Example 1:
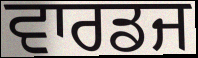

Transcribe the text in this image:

ਵਾਰਡਜ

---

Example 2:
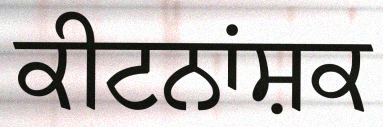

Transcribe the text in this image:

ਕੀਟਨਾਂਸ਼ਕ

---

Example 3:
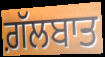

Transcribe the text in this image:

ਗ਼ੱਲਬਾਤ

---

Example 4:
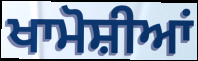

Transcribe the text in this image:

ਖਾਮੋਸ਼ੀਆਂ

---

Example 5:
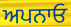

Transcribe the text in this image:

ਅਪਨਾਓ